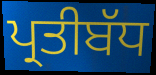
ਪ੍ਰਤੀਬੱਧ